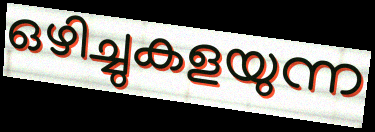
ഒഴിച്ചുകളയുന്ന